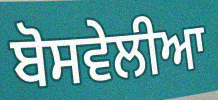
ਬੋਸਵੇਲੀਆ